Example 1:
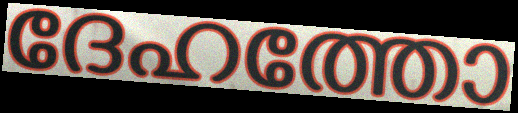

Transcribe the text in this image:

ദേഹത്തോ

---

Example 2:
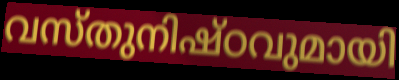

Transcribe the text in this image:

വസ്തുനിഷ്ഠവുമായി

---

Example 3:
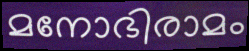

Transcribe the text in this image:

മനോഭിരാമം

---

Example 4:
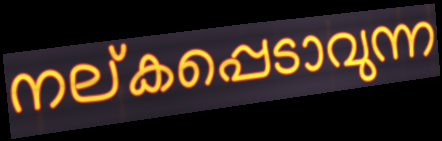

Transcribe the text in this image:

നല്കപ്പെടാവുന്ന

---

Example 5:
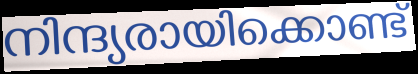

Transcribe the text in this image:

നിന്ദ്യരായിക്കൊണ്ട്